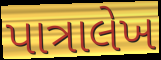
પાત્રાલેખ